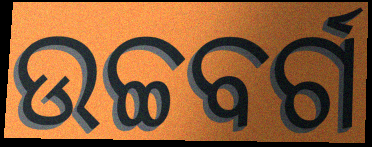
ଉଚ୍ଚବର୍ଗ